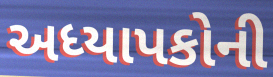
અધ્યાપકોની